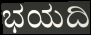
ಭಯದಿ